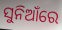
ସୁନିଆଁରେ